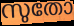
സുതോ